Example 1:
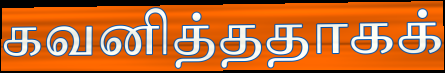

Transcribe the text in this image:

கவனித்ததாகக்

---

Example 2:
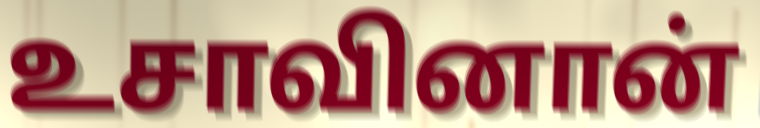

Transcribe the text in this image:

உசாவினான்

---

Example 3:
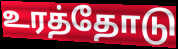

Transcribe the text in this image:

உரத்தோடு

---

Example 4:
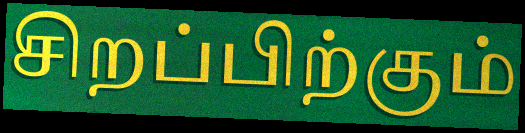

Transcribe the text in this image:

சிறப்பிற்கும்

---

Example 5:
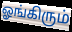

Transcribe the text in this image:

ஓங்கிரும்